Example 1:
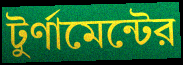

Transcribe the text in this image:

টুর্ণামেন্টের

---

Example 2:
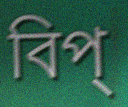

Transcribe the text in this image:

বিপ্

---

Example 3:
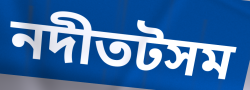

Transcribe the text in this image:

নদীতটসম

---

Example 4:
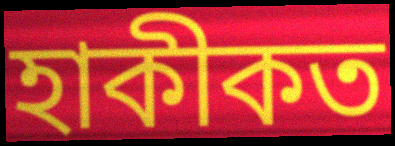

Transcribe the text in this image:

হাকীকত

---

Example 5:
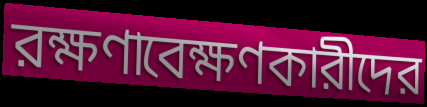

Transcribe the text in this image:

রক্ষণাবেক্ষণকারীদের